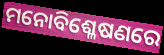
ମନୋବିଶ୍ଳେଷଣରେ